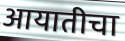
आयातीचा